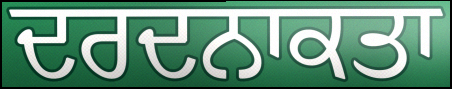
ਦਰਦਨਾਕਤਾ